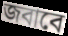
জবাবে